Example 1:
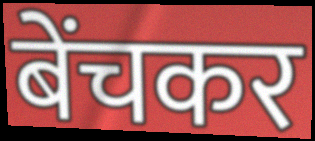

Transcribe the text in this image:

बेंचकर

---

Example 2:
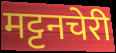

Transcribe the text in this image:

मट्टनचेरी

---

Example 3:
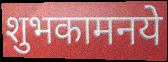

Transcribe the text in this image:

शुभकामनये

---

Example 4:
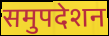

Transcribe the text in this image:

समुपदेशन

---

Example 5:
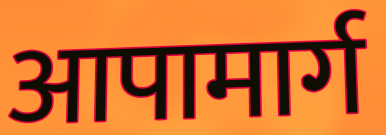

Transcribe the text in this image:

आपामार्ग